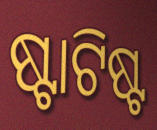
ଷ୍ଟାଟିଷ୍ଟ